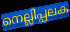
നെല്ലിപ്പലക